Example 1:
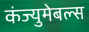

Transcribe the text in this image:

कंज्युमेबल्स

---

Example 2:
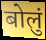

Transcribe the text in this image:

बोलुं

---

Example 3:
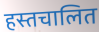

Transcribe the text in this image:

हस्तचालित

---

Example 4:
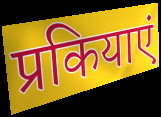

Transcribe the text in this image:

प्रकियाएं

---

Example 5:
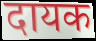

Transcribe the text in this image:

दायक